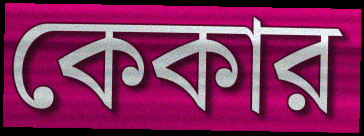
কেকার